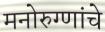
मनोरुग्णांचे